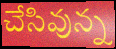
చేసివున్న